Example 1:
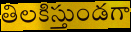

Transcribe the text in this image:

తిలకిస్తుండగా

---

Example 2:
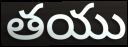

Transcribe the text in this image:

తయు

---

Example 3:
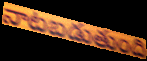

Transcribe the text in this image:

నాటబడుతుంది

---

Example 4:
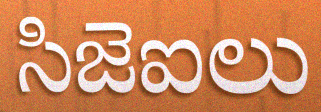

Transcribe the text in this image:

సిజెఐలు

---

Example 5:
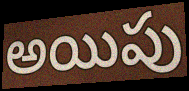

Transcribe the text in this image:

అయిపు